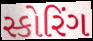
સ્કોરિંગ